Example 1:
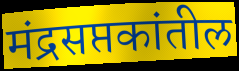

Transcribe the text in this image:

मंद्रसप्तकांतील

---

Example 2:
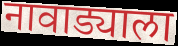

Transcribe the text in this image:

नावाड्याला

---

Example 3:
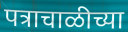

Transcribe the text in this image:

पत्राचाळीच्या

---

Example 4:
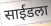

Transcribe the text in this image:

साईडला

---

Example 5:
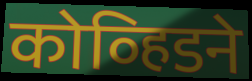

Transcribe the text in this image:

कोव्हिडने